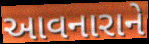
આવનારાને